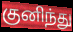
குனிந்து